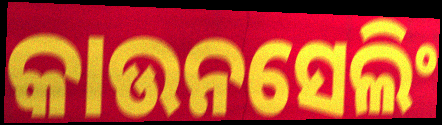
କାଉନସେଲିଂ